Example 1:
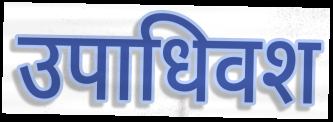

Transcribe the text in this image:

उपाधिवश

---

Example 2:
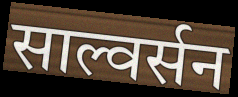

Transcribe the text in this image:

साल्वर्सन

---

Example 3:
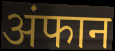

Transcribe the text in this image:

अंफान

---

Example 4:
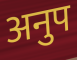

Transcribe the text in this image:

अनुप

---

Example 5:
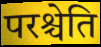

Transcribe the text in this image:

परश्चेति